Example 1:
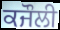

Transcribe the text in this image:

ਕਜੌਲੀ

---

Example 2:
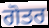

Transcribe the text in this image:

ਗੋਤਰ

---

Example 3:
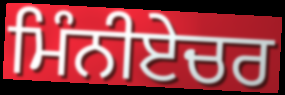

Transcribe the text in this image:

ਮਿੰਨੀਏਚਰ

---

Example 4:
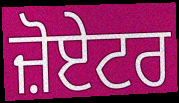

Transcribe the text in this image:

ਜ਼ੋਏਟਰ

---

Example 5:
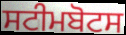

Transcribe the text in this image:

ਸਟੀਮਬੋਟਸ